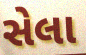
સેલા